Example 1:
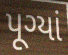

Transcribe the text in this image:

પૂગ્યાં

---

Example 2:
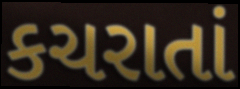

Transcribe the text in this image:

કચરાતાં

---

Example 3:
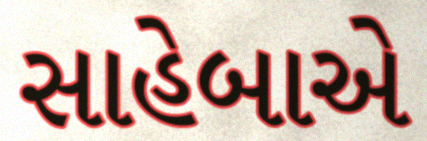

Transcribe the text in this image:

સાહેબાએ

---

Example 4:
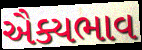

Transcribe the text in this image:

ઐક્યભાવ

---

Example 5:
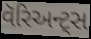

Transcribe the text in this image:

વૅરિઅન્ટ્સ